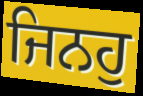
ਜਿਨਹੁ